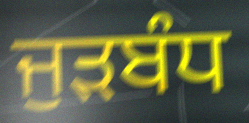
ਜੁੜਬੰਧ